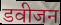
डवीजन